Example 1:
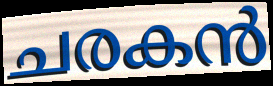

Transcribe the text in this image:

ചരകൻ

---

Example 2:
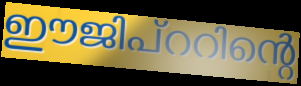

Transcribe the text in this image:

ഈജിപ്ററിന്റെ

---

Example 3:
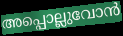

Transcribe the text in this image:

അപ്പൊല്ലുവോൻ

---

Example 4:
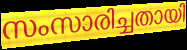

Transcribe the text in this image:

സംസാരിച്ചതായി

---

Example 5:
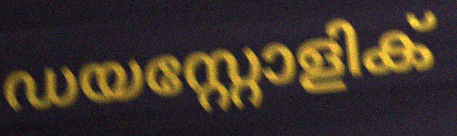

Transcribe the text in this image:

ഡയസ്റ്റോളിക്